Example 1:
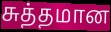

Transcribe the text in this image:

சுத்தமான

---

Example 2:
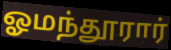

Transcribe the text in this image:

ஓமந்தூரார்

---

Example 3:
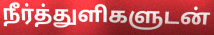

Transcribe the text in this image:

நீர்த்துளிகளுடன்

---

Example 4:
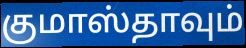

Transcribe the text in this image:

குமாஸ்தாவும்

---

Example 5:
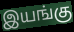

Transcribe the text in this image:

இயங்கு